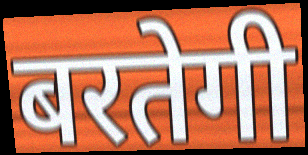
बरतेगी